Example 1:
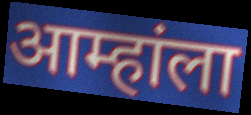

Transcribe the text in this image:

आम्हांला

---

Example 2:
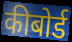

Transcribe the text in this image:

कीबोर्ड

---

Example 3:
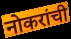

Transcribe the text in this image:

नोकरांची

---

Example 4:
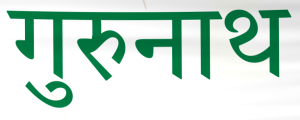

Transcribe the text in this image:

गुरुनाथ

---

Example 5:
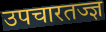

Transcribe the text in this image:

उपचारतज्ज्ञ